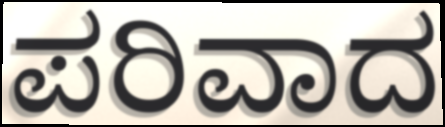
ಪರಿವಾದ